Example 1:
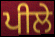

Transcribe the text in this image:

ਪੀਲੇ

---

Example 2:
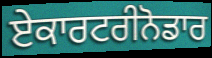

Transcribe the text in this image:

ਏਕਾਰਟਰੀਨੋਡਾਰ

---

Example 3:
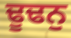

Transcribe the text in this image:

ਢੂਢਨੁ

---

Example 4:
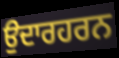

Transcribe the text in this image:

ਉਦਾਰਹਰਨ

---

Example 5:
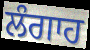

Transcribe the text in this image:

ਲੰਗਾਹ